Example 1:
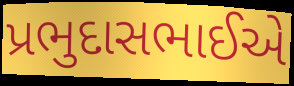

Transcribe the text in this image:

પ્રભુદાસભાઈએ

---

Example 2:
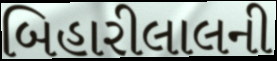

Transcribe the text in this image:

બિહારીલાલની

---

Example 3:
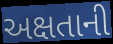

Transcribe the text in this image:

અક્ષતાની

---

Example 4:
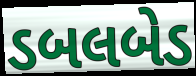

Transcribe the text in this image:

ડબલબેડ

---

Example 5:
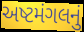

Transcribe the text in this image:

અષ્ટમંગલનું